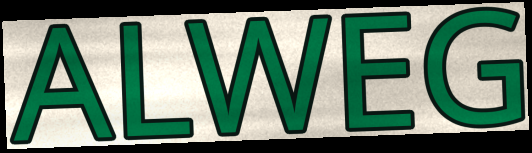
ALWEG